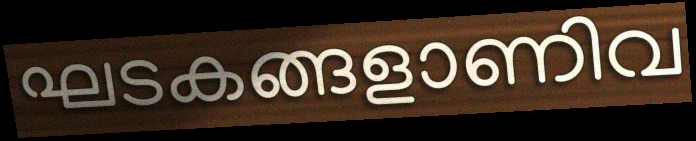
ഘടകങ്ങളാണിവ